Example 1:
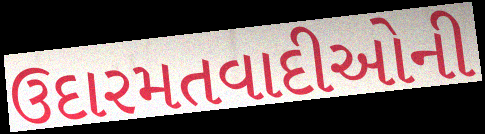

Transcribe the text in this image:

ઉદારમતવાદીઓની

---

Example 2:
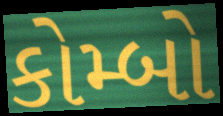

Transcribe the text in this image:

કોમ્બો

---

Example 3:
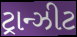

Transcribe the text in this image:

ટ્રાન્ઝીટ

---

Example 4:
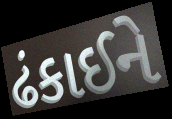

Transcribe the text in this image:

ઢંકાઈને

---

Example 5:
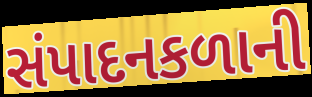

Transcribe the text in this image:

સંપાદનકળાની